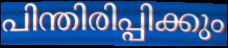
പിന്തിരിപ്പിക്കും